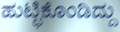
ಹುಟ್ಟಿಕೊಂಡಿದ್ದು